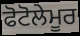
ਫੋਟੋਲੇਮੂਰ